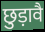
छुड़ावै